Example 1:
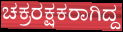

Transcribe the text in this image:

ಚಕ್ರರಕ್ಷಕರಾಗಿದ್ದ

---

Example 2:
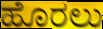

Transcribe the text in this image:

ಹೊರಲು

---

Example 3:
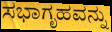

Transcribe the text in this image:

ಸಭಾಗೃಹವನ್ನು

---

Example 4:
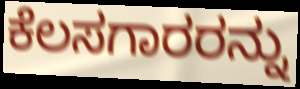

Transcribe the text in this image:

ಕೆಲಸಗಾರರನ್ನು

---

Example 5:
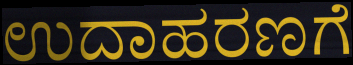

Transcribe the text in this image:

ಉದಾಹರಣಗೆ